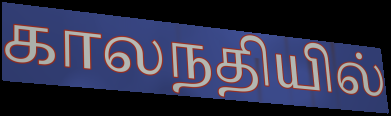
காலநதியில்